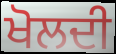
ਖੋਲਦੀ